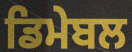
ਡਿਮੇਬਲ